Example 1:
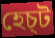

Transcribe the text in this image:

হেচ্ট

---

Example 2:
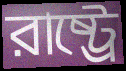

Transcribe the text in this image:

রাষ্ট্রে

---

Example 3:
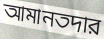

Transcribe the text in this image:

আমানতদার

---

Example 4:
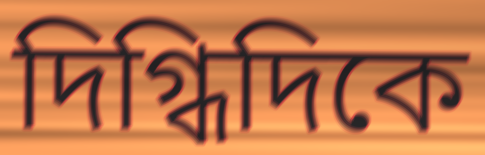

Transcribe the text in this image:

দিগ্ধিদিকে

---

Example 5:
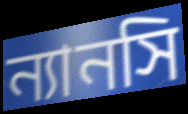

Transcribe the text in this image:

ন্যানসি